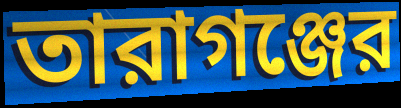
তারাগঞ্জের